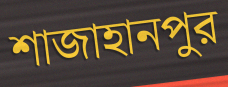
শাজাহানপুর